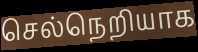
செல்நெறியாக